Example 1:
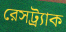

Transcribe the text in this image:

রেসট্র্যাক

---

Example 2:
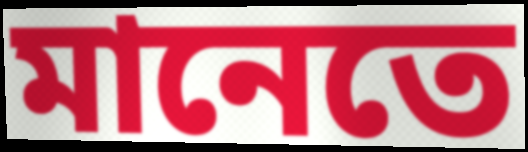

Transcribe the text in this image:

মানেতে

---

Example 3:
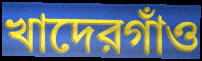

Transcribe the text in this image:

খাদেরগাঁও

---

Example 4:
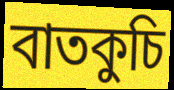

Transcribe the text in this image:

বাতকুচি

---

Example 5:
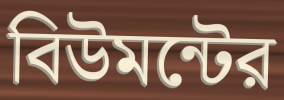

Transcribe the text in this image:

বিউমন্টের